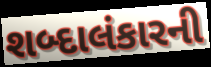
શબ્દાલંકારની